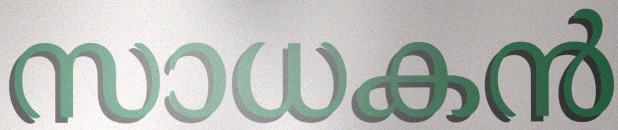
സാധകൻ